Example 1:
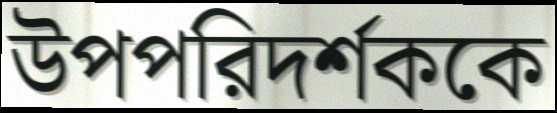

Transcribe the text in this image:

উপপরিদর্শককে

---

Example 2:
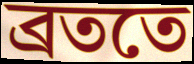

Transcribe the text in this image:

ব্রততে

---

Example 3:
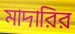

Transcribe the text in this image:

মাদারির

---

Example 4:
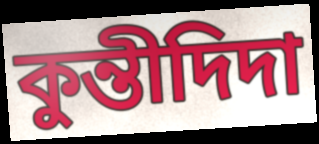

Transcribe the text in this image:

কুন্তীদিদা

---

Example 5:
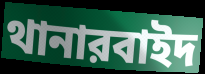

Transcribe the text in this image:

থানারবাইদ